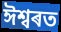
ঈশ্বৰত